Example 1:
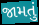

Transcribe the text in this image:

જામતું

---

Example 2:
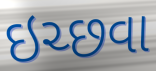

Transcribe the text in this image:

ઇચ્છવા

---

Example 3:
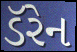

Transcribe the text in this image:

ડૅરેન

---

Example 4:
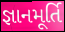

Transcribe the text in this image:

જ્ઞાનમૂર્તિ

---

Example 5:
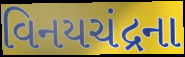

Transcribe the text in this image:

વિનયચંદ્રના